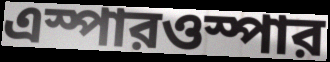
এস্পারওস্পার